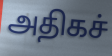
அதிகச்